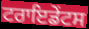
ਟਰਾਇਡੇਂਟਸ